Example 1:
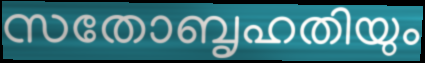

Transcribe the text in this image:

സതോബൃഹതിയും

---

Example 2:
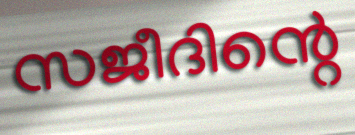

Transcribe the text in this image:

സജീദിന്റെ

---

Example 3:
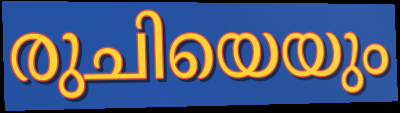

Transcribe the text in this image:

രുചിയെയും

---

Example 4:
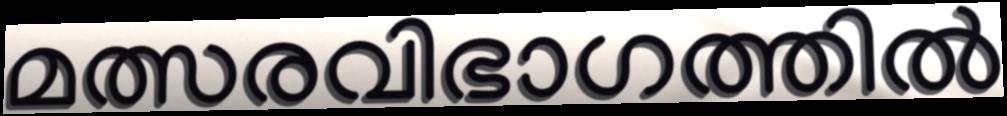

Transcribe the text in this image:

മത്സരവിഭാഗത്തിൽ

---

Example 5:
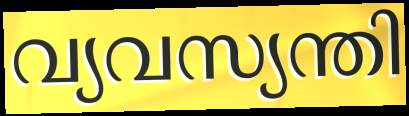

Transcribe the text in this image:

വ്യവസ്യന്തി